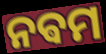
ନଵମ